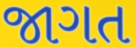
જાગત